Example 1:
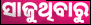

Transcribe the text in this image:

ସାଜୁଥିବାରୁ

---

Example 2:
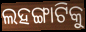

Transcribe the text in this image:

ଲହଙ୍ଗାଟିକୁ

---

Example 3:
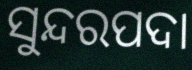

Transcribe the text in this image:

ସୁନ୍ଦରପଦା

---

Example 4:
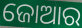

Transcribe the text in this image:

ଜୋଆର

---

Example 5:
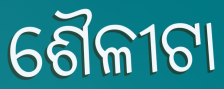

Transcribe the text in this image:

ଶୈଳୀଟା